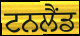
ਟਨਲੈਂਡ